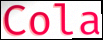
Cola